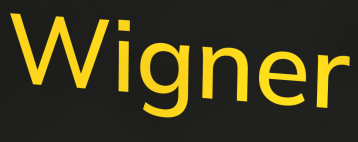
Wigner